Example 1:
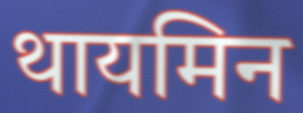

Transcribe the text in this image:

थायमिन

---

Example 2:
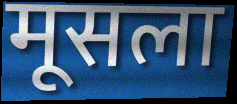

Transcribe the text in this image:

मूसला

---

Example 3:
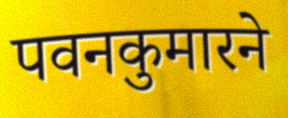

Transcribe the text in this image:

पवनकुमारने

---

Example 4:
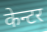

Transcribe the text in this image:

केन्टर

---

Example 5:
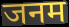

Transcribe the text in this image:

जनम